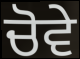
ਚੋਵੇ